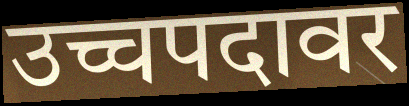
उच्चपदावर